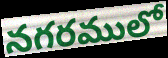
నగరములో